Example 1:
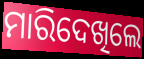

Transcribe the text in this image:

ମାରିଦେଖିଲେ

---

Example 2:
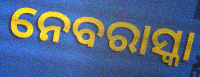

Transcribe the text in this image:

ନେବରାସ୍କା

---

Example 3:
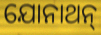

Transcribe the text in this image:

ଯୋନାଥନ୍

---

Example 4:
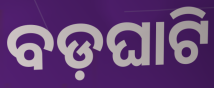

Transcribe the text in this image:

ବଡ଼ଘାଟି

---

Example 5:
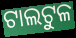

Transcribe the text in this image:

ଟାଲଟୁଳ